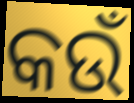
କଉଁ